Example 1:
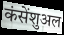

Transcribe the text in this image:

कंसेंशुअल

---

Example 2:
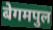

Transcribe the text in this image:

बेगमपुल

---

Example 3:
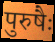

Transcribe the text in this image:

पुरुषैः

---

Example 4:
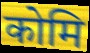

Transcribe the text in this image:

कोमि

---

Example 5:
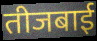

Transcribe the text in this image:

तीजबाई